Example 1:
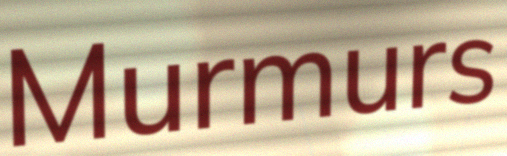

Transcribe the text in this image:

Murmurs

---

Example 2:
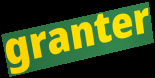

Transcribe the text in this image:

granter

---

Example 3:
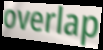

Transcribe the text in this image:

overlap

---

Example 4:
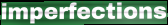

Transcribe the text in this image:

imperfections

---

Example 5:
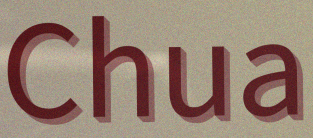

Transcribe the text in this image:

Chua